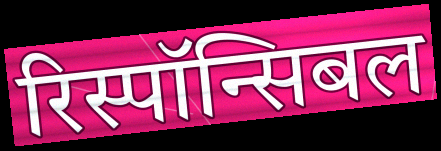
रिस्पॉन्सिबल